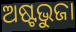
ଅଷ୍ଟଭୁଜା